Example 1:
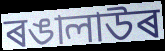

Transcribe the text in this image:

ৰঙালাউৰ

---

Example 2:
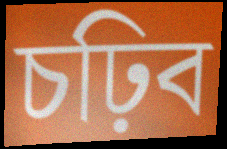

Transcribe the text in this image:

চঢ়িব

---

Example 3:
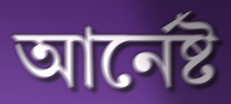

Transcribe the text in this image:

আৰ্নেষ্ট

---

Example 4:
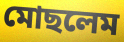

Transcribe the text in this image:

মোছলেম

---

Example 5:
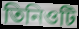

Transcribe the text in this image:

তিনিওটি